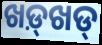
ଖଡ଼୍‌ଖଡ୍